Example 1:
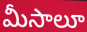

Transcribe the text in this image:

మీసాలూ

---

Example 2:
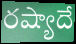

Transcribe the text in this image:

రష్యాదే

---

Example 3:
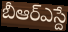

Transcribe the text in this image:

బీఆర్ఎస్దే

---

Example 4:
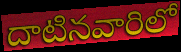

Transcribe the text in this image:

దాటినవారిలో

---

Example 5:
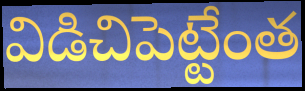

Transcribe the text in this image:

విడిచిపెట్టేంత